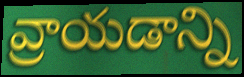
వ్రాయడాన్ని